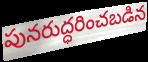
పునరుద్ధరించబడిన